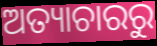
ଅତ୍ୟାଚାରରୁ